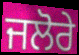
ਜਲੋਰੇ